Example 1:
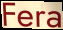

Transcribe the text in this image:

Fera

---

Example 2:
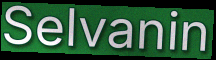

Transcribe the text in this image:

Selvanin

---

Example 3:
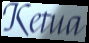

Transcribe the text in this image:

Ketua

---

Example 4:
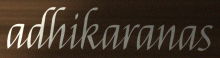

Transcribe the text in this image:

adhikaranas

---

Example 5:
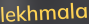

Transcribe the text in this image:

lekhmala